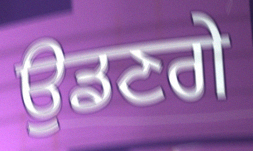
ਉਡਣਗੇ